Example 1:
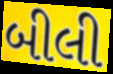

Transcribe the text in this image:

બીલી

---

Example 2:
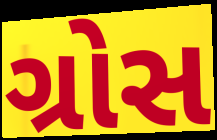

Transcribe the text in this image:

ગ્રોસ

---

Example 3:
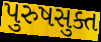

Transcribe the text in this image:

પુરુષસુક્ત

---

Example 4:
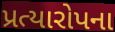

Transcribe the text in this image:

પ્રત્યારોપના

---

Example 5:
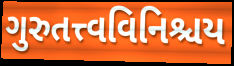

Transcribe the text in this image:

ગુરુતત્ત્વવિનિશ્ચય